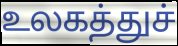
உலகத்துச்